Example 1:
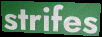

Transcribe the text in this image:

strifes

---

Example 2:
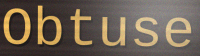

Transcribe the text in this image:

Obtuse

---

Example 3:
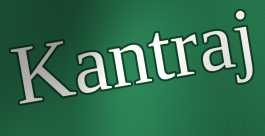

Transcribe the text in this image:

Kantraj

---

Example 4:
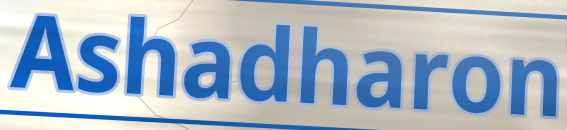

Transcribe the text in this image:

Ashadharon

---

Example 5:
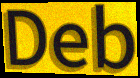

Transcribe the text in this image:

Deb